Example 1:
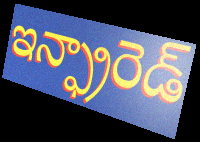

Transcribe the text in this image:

ఇన్ఫ్రారెడ్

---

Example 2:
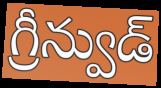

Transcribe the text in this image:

గ్రీన్వుడ్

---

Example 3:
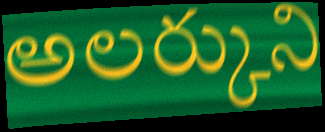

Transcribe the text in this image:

అలర్కుని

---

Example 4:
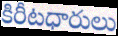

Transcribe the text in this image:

కిరీటధారులు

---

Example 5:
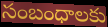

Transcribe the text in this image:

సంబంధాలకు